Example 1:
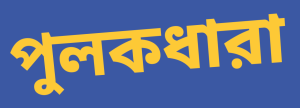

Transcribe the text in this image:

পুলকধারা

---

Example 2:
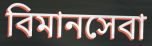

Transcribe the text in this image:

বিমানসেবা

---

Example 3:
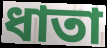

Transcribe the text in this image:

ধাতা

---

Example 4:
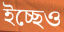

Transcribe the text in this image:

ইচ্ছেও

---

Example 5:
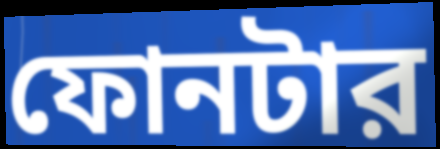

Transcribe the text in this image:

ফোনটার